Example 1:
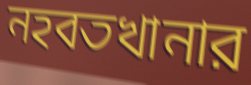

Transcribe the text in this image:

নহবতখানার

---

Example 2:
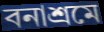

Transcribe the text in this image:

বনাশ্রমে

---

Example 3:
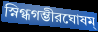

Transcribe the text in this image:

স্নিগ্ধগম্ভীরঘোষম্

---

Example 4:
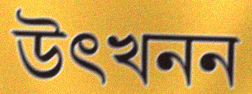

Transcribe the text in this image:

উৎখনন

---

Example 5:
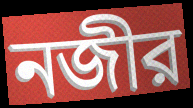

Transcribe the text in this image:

নজীর